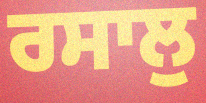
ਰਸਾਲੁ